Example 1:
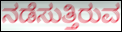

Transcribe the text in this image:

ನಡೆಸುತ್ತಿರುವ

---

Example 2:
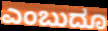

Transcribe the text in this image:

ಎಂಬುದೂ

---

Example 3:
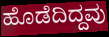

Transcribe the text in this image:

ಹೊಡೆದಿದ್ದವು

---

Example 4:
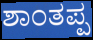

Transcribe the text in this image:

ಶಾಂತಪ್ಪ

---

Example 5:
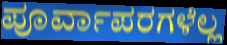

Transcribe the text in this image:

ಪೂರ್ವಾಪರಗಳೆಲ್ಲ